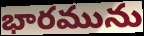
భారమును